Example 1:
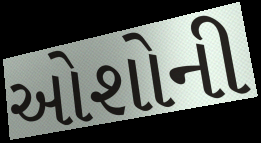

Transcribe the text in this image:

ઓશોની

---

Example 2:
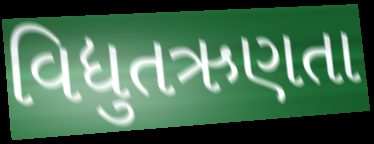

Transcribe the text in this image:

વિદ્યુતઋણતા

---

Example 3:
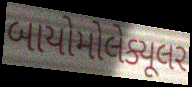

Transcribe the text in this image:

બાયોમોલેક્યૂલર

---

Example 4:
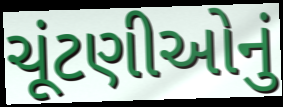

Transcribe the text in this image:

ચૂંટણીઓનું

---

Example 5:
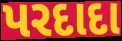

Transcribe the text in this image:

પરદાદા